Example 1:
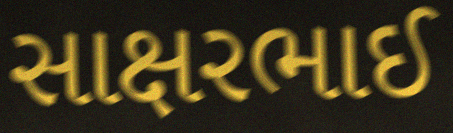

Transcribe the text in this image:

સાક્ષરભાઈ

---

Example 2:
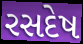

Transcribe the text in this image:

રસદેષ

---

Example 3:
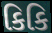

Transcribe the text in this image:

કિકિ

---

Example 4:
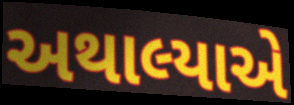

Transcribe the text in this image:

અથાલ્યાએ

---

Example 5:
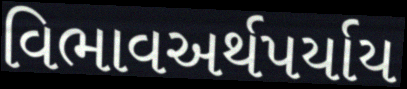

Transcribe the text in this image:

વિભાવઅર્થપર્યાય